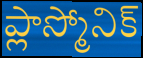
ప్లాస్మోనిక్